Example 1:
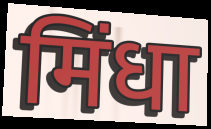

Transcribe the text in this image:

मिंधा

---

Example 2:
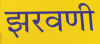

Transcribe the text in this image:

झरवणी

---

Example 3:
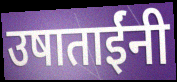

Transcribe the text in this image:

उषाताईंनी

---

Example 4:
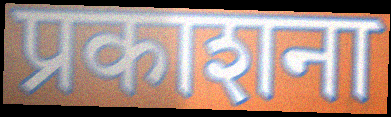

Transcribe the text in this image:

प्रकाशना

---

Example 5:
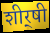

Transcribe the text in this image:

शीर्षी